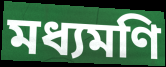
মধ্যমণি